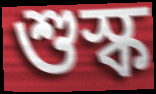
শুস্ক